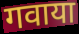
गवाया